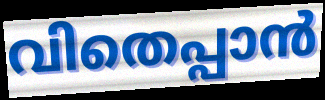
വിതെപ്പാൻ